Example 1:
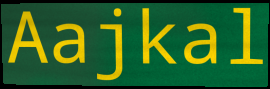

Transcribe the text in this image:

Aajkal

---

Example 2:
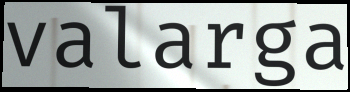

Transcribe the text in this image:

valarga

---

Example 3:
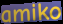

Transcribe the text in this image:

amiko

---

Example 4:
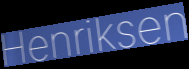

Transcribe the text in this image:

Henriksen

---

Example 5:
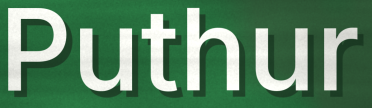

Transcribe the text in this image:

Puthur